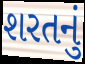
શરતનું